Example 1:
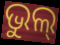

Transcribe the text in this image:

ଭୁଲ୍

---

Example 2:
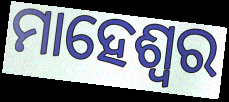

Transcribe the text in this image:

ମାହେଶ୍ଵର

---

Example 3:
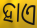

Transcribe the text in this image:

ହାଏ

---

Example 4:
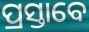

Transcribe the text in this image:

ପ୍ରସ୍ତାବେ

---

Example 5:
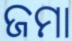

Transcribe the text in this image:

ଜମା